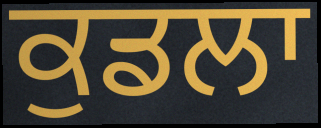
ਕੁਡਲਾ